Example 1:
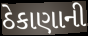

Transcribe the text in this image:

ઠેકાણાની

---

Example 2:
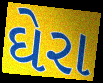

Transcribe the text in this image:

ઘેરા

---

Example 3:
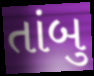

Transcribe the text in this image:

તાંબુ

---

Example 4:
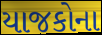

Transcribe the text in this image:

યાજકોના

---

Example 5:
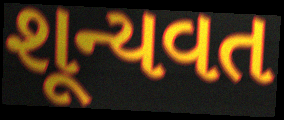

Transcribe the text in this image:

શૂન્યવત